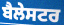
ਬੈਲੇਸਟਰ